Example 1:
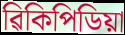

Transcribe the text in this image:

ৱিকিপিডিয়া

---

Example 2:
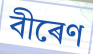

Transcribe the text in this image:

বীৰেণ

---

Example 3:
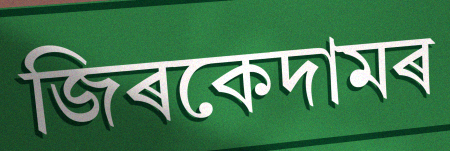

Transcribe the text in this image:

জিৰকেদামৰ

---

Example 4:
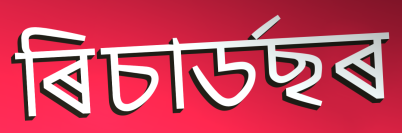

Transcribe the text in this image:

ৰিচাৰ্ডছৰ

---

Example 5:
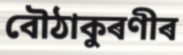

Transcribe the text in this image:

বৌঠাকুৰণীৰ